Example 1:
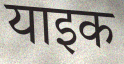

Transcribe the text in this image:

याइक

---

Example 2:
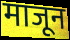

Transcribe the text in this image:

माजून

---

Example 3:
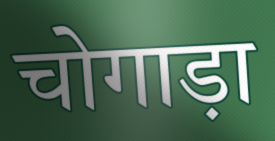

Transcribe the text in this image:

चोगाड़ा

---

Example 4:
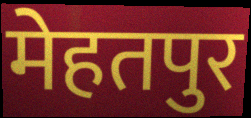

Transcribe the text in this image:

मेहतपुर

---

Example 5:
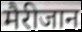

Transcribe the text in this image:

मैरीजान